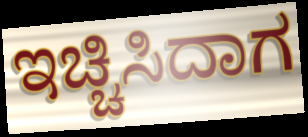
ಇಚ್ಚಿಸಿದಾಗ